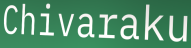
Chivaraku